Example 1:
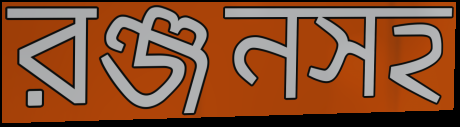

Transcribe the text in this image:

রঞ্জনসহ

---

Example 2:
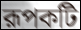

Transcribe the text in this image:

রূপকটি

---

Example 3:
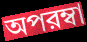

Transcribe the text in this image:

অপরম্বা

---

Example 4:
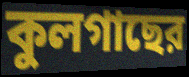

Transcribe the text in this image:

কুলগাছের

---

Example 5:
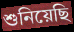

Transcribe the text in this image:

শুনিয়েছি